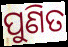
ପୁଣିତ